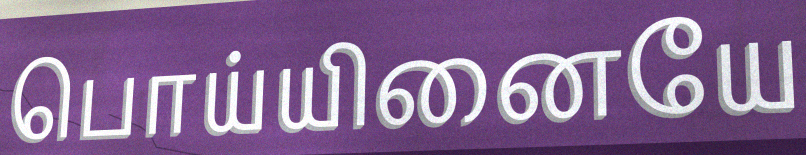
பொய்யினையே